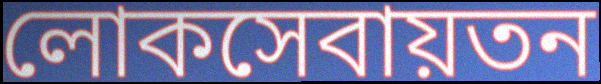
লোকসেবায়তন